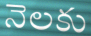
నెలకు